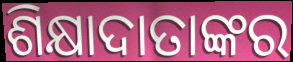
ଶିକ୍ଷାଦାତାଙ୍କର